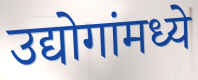
उद्योगांमध्ये